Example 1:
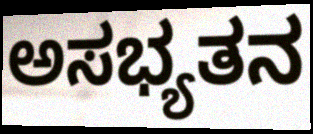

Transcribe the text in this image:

ಅಸಭ್ಯತನ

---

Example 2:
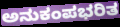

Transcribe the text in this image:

ಅನುಕಂಪಭರಿತ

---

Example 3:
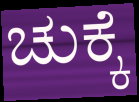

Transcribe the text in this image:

ಚುಕ್ಕೆ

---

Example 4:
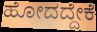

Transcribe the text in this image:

ಹೋದದ್ದೇಕೆ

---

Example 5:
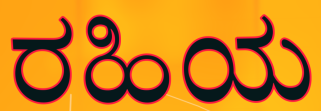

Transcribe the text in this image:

ರಹಿಯ